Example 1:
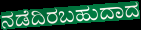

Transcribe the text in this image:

ನಡೆದಿರಬಹುದಾದ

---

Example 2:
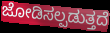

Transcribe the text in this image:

ಜೋಡಿಸಲ್ಪಡುತ್ತದೆ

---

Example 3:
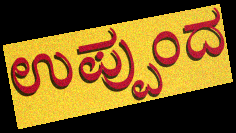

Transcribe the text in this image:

ಉಪ್ಪುಂದ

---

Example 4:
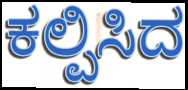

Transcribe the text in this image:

ಕಲ್ಪಿಸಿದ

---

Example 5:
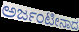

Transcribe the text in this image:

ಅರ್ಜಂಟೀನಾದ